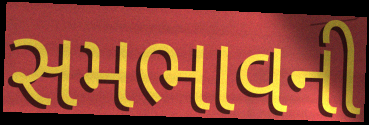
સમભાવની